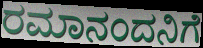
ರಮಾನಂದನಿಗೆ